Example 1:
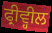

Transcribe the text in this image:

ਫ੍ਰੀਵ੍ਹੀਲ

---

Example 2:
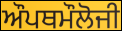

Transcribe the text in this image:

ਔਪਥਮੌਲੋਜੀ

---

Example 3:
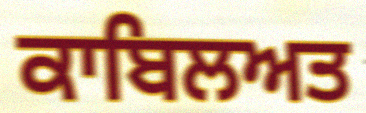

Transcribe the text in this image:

ਕਾਬਿਲਅਤ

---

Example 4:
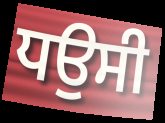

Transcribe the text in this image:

ਧਉਸੀ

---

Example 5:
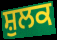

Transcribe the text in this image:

ਸ਼ੁਲਕ